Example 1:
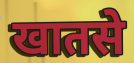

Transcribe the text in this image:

खातसे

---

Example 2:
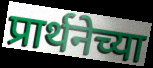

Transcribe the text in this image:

प्रार्थनेच्या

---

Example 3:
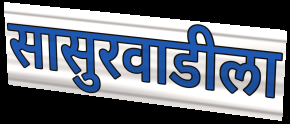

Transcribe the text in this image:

सासुरवाडीला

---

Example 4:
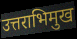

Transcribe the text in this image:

उत्तराभिमुख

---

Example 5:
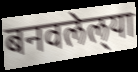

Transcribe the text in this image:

बनवलेल्या